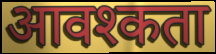
आवश्कता